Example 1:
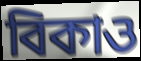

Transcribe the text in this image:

বিকাও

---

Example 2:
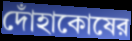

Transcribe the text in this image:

দোঁহাকোষের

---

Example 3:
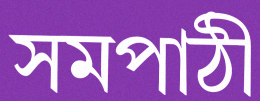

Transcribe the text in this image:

সমপাঠী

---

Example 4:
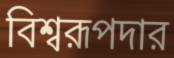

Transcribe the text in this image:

বিশ্বরূপদার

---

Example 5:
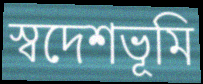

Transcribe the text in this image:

স্বদেশভূমি